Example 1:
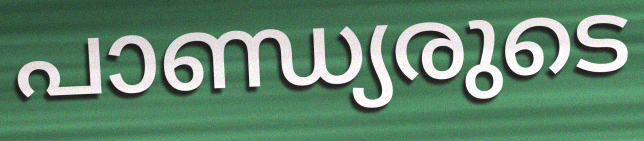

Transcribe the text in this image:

പാണ്ഡ്യരുടെ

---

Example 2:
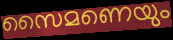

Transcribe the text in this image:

സൈമണെയും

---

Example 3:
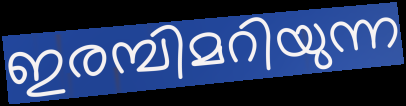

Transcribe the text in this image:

ഇരമ്പിമറിയുന്ന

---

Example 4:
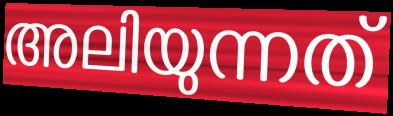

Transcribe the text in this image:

അലിയുന്നത്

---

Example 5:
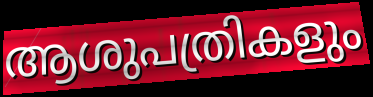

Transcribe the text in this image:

ആശുപത്രികളും